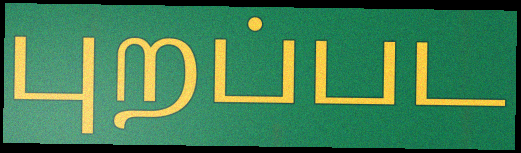
புறப்பட